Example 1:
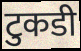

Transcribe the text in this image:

टुकडी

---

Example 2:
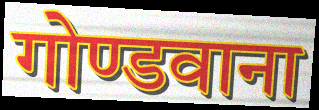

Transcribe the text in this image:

गोण्डवाना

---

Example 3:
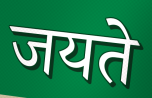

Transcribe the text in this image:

जयते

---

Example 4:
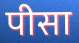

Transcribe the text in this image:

पीसा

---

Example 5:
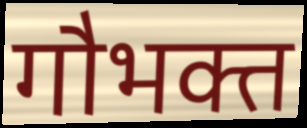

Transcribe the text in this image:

गौभक्त